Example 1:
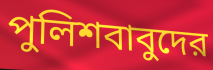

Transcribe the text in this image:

পুলিশবাবুদের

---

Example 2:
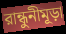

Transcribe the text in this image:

রান্ধুনীমূড়া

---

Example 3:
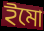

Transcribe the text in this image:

ইমো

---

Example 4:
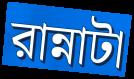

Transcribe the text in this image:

রান্নাটা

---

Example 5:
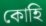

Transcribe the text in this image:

কোহি